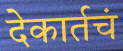
देकार्तचं